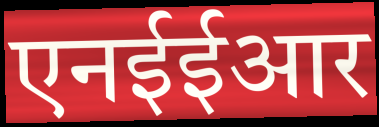
एनईईआर